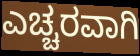
ಎಚ್ಚರವಾಗಿ